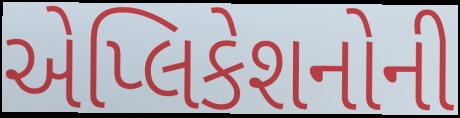
એપ્લિકેશનોની